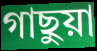
গাছুয়া